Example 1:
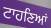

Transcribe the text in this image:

ਟਾਹਣਿਆਂ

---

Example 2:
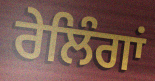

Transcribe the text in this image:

ਰੇਲਿੰਗਾਂ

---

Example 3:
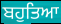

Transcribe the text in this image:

ਬਹੁਤਿਆ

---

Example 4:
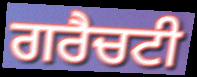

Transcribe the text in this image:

ਗਰੈਚਟੀ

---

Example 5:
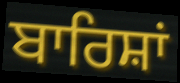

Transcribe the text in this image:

ਬਾਰਿਸ਼ਾਂ